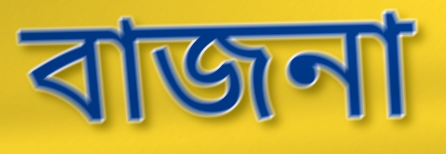
বাজনা